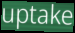
uptake